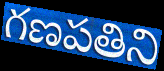
గణపతిని